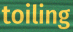
toiling